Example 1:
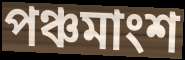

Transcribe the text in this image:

পঞ্চমাংশ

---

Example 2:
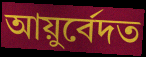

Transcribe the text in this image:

আয়ুৰ্বেদত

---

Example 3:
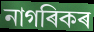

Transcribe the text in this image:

নাগৰিকৰ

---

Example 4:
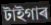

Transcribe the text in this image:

টাইগাৰ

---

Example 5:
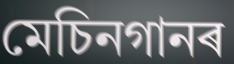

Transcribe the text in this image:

মেচিনগানৰ